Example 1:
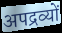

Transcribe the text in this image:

अपद्रव्यों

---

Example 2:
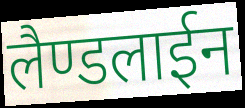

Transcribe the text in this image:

लैण्डलाईन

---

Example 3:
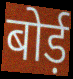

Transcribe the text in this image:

बोर्ड़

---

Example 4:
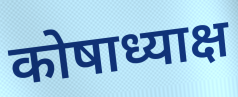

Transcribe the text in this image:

कोषाध्याक्ष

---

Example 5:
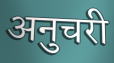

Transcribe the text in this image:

अनुचरी